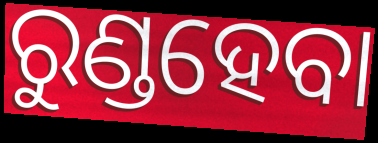
ରୁଣ୍ଡହେବା